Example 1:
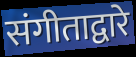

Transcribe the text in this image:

संगीताद्वारे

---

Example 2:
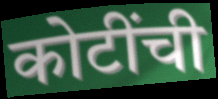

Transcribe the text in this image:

कोटींची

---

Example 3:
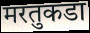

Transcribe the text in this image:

मरतुकडा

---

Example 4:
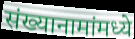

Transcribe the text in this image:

संख्यानामांमध्ये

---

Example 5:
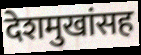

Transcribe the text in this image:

देशमुखांसह